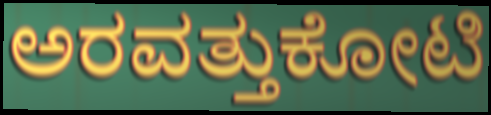
ಅರವತ್ತುಕೋಟಿ